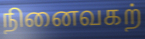
நினைவகற்